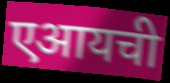
एआयची